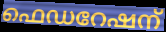
ഫെഡറേഷന്